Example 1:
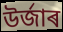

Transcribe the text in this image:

উৰ্জাৰ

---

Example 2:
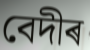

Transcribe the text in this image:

বেদীৰ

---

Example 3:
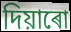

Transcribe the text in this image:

দিয়াৰো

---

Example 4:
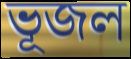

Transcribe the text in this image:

ভূজল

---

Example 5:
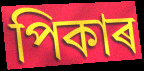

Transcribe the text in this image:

পিকাৰ